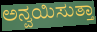
ಅನ್ವಯಿಸುತ್ತಾ